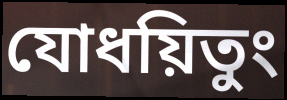
যোধয়িতুং